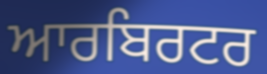
ਆਰਬਿਰਟਰ